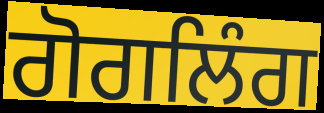
ਗੋਗਲਿੰਗ